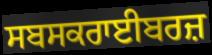
ਸਬਸਕਰਾਈਬਰਜ਼